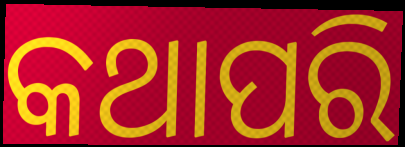
କଥାପରି